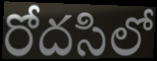
రోదసిలో